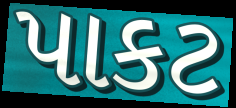
પાકટ